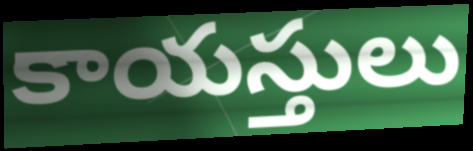
కాయస్తులు